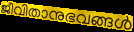
ജീവിതാനുഭവങ്ങൾ